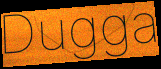
Dugga